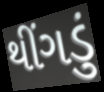
થીંગડું